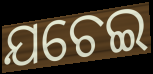
ଯଚେଇ